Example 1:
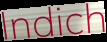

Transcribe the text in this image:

Indich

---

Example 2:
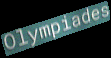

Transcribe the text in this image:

Olympiades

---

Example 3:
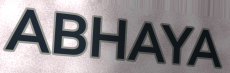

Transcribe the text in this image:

ABHAYA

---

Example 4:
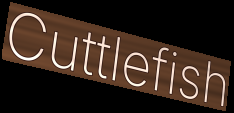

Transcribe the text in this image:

Cuttlefish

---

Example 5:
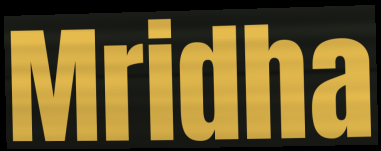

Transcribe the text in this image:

Mridha